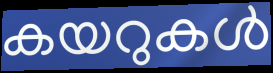
കയറുകൾ